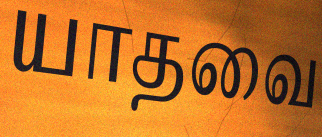
யாதவை